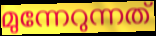
മുന്നേറുന്നത്